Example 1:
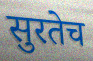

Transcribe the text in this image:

सुरतेच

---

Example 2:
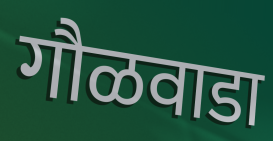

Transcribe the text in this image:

गौळवाडा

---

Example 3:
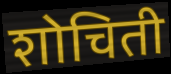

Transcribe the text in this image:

शोचिती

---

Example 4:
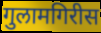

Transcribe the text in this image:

गुलामगिरीस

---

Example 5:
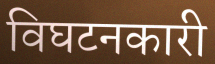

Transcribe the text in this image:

विघटनकारी